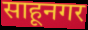
साहूनगर